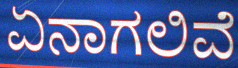
ಏನಾಗಲಿವೆ